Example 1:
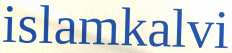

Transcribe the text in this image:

islamkalvi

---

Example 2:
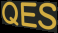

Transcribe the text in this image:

QES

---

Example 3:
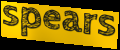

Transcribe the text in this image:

spears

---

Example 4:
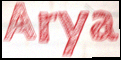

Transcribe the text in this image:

Arya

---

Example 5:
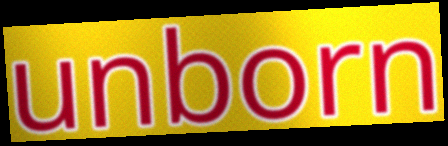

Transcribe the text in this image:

unborn